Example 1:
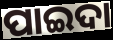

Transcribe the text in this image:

ପାଇଦା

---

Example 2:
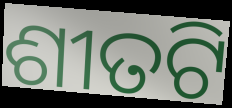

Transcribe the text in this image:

ଶୀତଟି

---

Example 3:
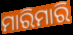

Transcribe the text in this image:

ମାରିମାରି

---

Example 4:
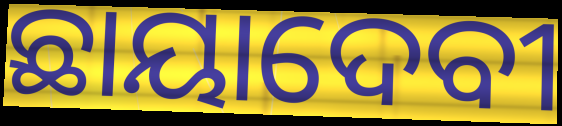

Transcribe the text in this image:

ଛାୟାଦେବୀ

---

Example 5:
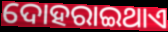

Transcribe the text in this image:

ଦୋହରାଇଥାଏ